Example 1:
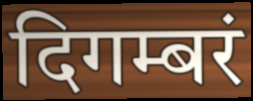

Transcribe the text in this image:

दिगम्बरं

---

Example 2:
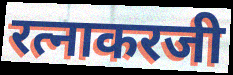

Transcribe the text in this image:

रत्नाकरजी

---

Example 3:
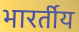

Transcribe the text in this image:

भारर्तीय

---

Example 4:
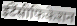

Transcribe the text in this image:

इंटेंसीफिकेशन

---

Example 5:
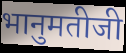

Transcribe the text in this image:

भानुमतीजी